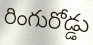
రింగురోడ్డు